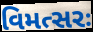
વિમત્સરઃ